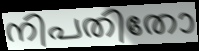
നിപതിതോ